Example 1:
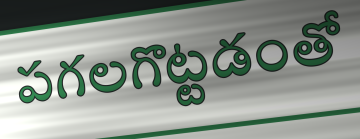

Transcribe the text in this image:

పగలగొట్టడంతో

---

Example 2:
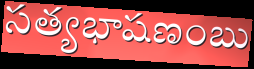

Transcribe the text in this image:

సత్యభాషణంబు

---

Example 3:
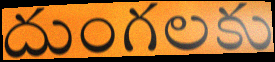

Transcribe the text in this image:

దుంగలకు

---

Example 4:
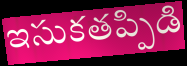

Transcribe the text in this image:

ఇసుకతప్పిడి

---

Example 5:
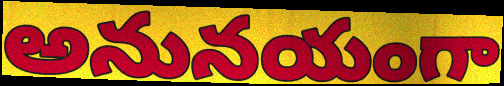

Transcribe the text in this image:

అనునయంగా